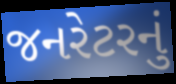
જનરેટરનું